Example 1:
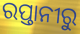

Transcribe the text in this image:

ରପ୍ତାନୀରୁ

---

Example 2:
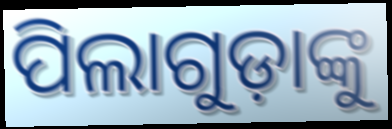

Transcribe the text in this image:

ପିଲାଗୁଡ଼ାଙ୍କୁ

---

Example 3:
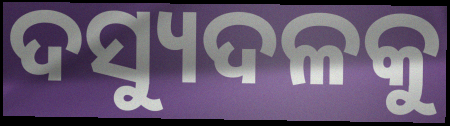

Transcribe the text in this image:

ଦସ୍ୟୁଦଳକୁ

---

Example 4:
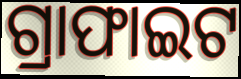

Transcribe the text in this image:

ଗ୍ରାଫାଇଟ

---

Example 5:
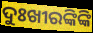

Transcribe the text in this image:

ଦୁଃଖୀରଙ୍କିଙ୍କି